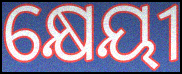
କ୍ଷେୟୀ